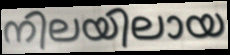
നിലയിലായ